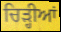
ਚਿੜ੍ਹੀਆਂ